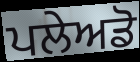
ਪਲੇਅਡੋ